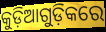
କୁଡ଼ିଆଗୁଡ଼ିକରେ